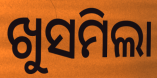
ଖୁସମିଲା